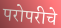
परोपरीचे